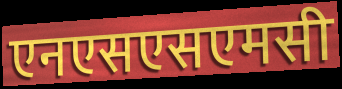
एनएसएसएमसी